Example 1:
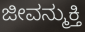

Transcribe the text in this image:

ಜೀವನ್ಮುಕ್ತಿ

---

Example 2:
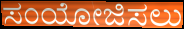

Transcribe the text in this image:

ಸಂಯೋಜಿಸಲು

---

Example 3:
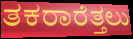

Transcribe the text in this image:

ತಕರಾರೆತ್ತಲು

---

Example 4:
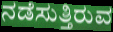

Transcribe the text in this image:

ನಡೆಸುತ್ತಿರುವ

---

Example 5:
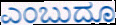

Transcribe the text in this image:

ಎಂಬುದೂ